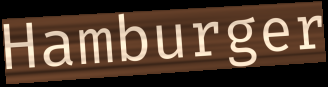
Hamburger